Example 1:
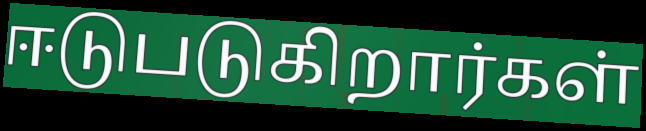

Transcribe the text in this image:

ஈடுபடுகிறார்கள்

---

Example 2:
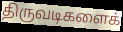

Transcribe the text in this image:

திருவடிகளைக்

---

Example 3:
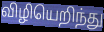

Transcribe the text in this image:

விழியெறிந்து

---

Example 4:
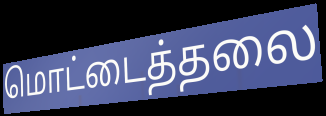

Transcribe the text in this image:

மொட்டைத்தலை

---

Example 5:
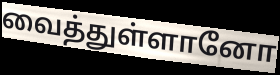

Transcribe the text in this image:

வைத்துள்ளானோ